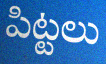
పిట్టలు